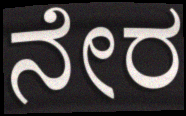
ನೇರ